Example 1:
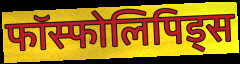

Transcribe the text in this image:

फॉस्फोलिपिड्स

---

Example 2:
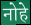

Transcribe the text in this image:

नोहे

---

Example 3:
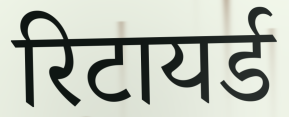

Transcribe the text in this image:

रिटायर्ड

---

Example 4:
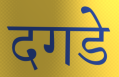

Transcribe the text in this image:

दगडे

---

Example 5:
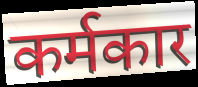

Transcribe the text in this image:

कर्मकार